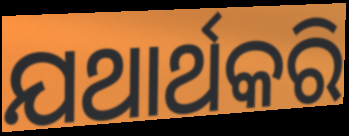
ଯଥାର୍ଥକରି